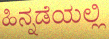
ಹಿನ್ನಡೆಯಲ್ಲಿ